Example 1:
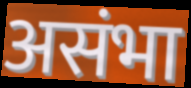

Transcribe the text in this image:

असंभा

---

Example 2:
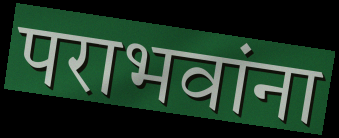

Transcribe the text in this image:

पराभवांना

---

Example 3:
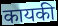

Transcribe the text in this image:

कायकी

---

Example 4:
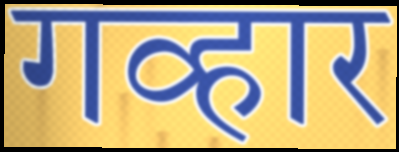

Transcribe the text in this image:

गव्हार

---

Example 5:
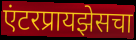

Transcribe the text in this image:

एंटरप्रायझेसचा